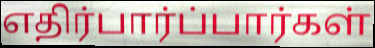
எதிர்பார்ப்பார்கள்